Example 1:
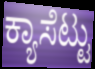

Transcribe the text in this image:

ಕ್ಯಾಸೆಟ್ಟು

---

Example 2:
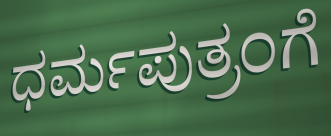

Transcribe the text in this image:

ಧರ್ಮಪುತ್ರಂಗೆ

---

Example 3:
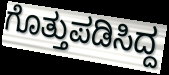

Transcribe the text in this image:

ಗೊತ್ತುಪಡಿಸಿದ್ದ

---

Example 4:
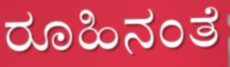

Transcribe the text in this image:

ರೂಹಿನಂತೆ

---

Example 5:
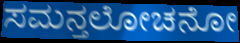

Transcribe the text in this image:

ಸಮನ್ತಲೋಚನೋ